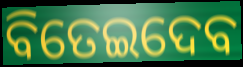
ବିତେଇଦେବ